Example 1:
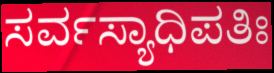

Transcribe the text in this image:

ಸರ್ವಸ್ಯಾಧಿಪತಿಃ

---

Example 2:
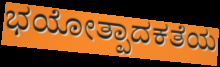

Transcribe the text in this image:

ಭಯೋತ್ಪಾದಕತೆಯ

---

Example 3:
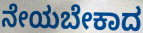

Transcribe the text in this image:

ನೇಯಬೇಕಾದ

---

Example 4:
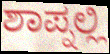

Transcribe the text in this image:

ಶಾಪ್ನಲ್ಲಿ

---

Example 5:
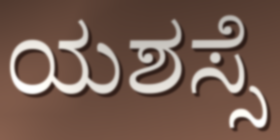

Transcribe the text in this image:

ಯಶಸ್ಸೆ